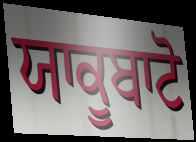
ਯਾਕੂਬਾਟੋ